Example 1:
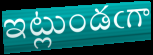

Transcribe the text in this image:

ఇట్లుండఁగా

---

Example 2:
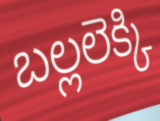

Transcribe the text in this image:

బల్లలెక్కి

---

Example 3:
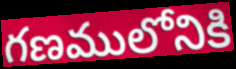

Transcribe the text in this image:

గణములోనికి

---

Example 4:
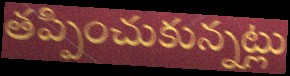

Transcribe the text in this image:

తప్పించుకున్నట్లు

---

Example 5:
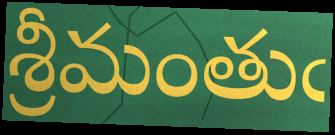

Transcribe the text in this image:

శ్రీమంతుఁ